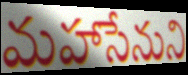
మహాసేనుని